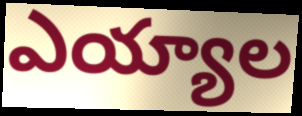
ఎయ్యాల